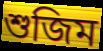
শুজিম